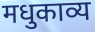
मधुकाव्य